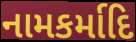
નામકર્માદિ